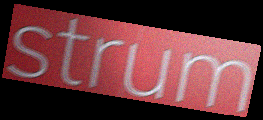
strum